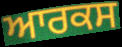
ਆਰਕਸ